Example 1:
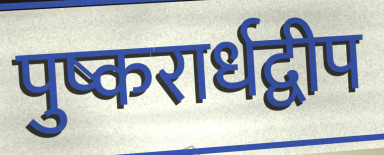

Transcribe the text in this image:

पुष्करार्धद्वीप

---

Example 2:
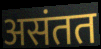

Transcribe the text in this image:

असंतत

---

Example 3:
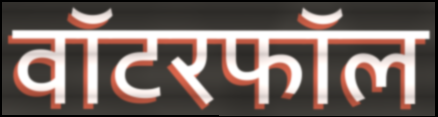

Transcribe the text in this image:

वॉटरफॉल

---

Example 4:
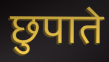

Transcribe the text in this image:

छुपाते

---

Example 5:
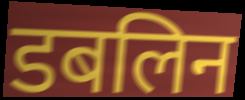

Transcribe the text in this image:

डबलिन